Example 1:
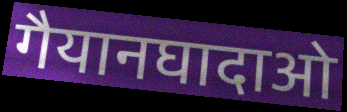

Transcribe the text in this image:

गैयानघादाओ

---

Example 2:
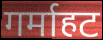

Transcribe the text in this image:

गर्माहट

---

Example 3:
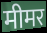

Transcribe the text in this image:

मीमर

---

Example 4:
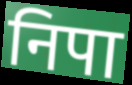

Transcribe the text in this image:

निपा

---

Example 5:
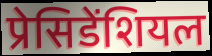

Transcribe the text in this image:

प्रेसिडेंशियल